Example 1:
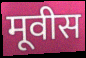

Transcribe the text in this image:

मूवीस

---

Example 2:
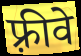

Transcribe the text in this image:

फ़्रीवे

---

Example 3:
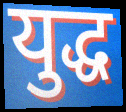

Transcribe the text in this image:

युद्ध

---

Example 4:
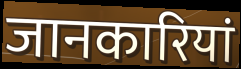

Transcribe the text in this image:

जानकारियां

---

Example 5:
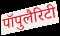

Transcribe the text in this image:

पॉपुलैरिटी